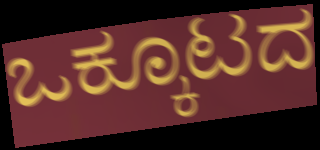
ಒಕ್ಕೂಟದ